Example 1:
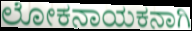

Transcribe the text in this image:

ಲೋಕನಾಯಕನಾಗಿ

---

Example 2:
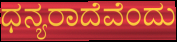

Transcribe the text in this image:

ಧನ್ಯರಾದೆವೆಂದು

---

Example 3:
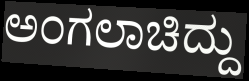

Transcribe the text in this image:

ಅಂಗಲಾಚಿದ್ದು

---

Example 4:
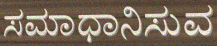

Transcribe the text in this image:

ಸಮಾಧಾನಿಸುವ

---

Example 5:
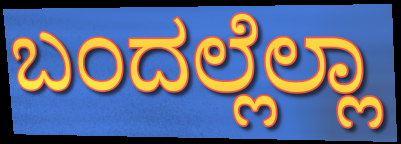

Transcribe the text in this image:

ಬಂದಲ್ಲೆಲ್ಲಾ